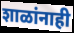
शाळांनाही